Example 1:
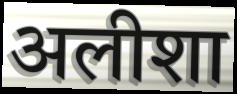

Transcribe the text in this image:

अलीशा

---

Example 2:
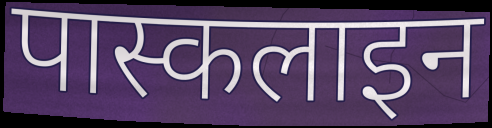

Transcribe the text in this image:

पास्कलाइन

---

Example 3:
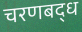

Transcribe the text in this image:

चरणबद्ध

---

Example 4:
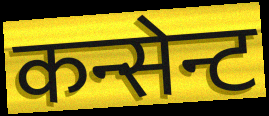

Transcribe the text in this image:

कन्सेन्ट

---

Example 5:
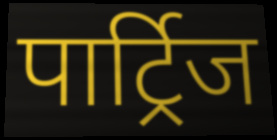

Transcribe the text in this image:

पार्ट्रिज